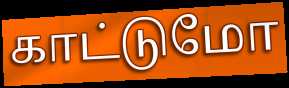
காட்டுமோ